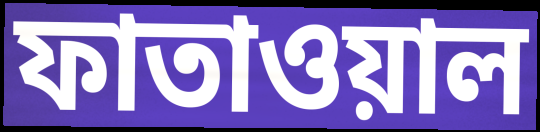
ফাতাওয়াল